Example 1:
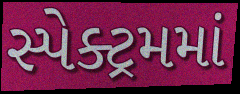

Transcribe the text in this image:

સ્પેક્ટ્રમમાં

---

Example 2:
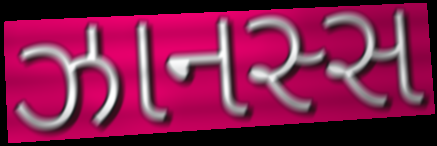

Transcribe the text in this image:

ઝાનસ્સ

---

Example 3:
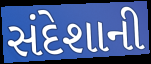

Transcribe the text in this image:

સંદેશાની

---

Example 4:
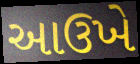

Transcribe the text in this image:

આઉખે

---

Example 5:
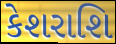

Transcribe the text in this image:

કેશરાશિ